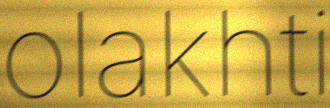
olakhti